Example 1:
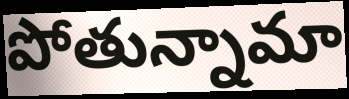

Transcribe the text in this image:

పోతున్నామా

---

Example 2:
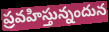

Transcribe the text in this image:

ప్రవహిస్తున్నందున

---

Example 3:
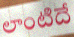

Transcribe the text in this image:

లాంటిదే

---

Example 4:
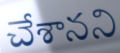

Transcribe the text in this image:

చేశానని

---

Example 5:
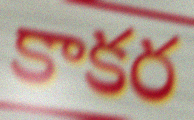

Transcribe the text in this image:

కాకర